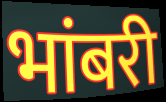
भांबरी